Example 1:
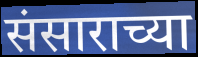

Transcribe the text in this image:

संसाराच्या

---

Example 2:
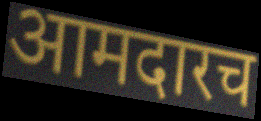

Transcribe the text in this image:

आमदारच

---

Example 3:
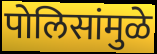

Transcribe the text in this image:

पोलिसांमुळे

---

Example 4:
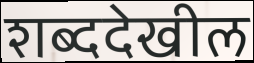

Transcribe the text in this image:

शब्ददेखील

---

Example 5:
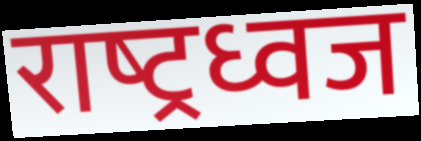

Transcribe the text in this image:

राष्ट्रध्वज